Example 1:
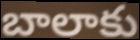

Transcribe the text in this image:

బాలాకు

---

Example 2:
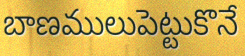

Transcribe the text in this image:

బాణములుపెట్టుకొనే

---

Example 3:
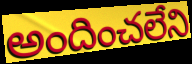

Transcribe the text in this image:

అందించలేని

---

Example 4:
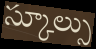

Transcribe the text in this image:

స్కూల్సు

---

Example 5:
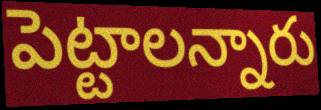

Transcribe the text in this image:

పెట్టాలన్నారు